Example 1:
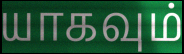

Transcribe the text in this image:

யாகவும்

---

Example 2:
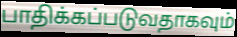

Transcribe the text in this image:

பாதிக்கப்படுவதாகவும்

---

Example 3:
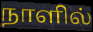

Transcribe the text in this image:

நாளில்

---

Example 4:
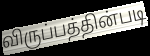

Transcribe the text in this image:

விருப்பத்தின்படி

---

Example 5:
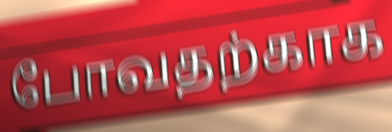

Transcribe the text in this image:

போவதற்காக